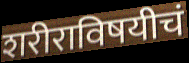
शरीराविषयीचं